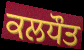
ਕਲਧੌਤ